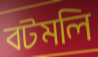
বটমলি